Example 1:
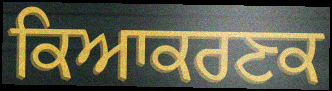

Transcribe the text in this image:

ਕਿਆਕਰਣਕ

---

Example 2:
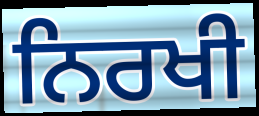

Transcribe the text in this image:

ਨਿਰਖੀ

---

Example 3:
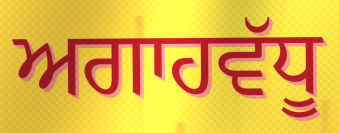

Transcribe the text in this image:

ਅਗਾਹਵੱਧੂ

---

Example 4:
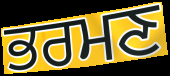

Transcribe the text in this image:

ਭਰਮਣ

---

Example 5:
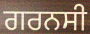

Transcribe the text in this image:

ਗਰਨਸੀ